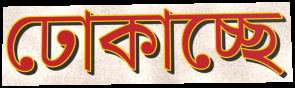
ঢোকাচ্ছে